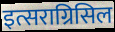
इत्सराग्रिसिल